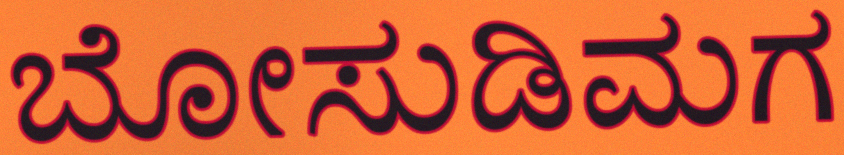
ಬೋಸುಡಿಮಗ